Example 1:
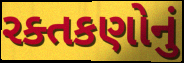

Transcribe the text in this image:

રક્તકણોનું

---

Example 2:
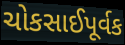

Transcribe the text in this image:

ચોકસાઈપૂર્વક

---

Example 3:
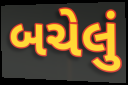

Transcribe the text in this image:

બચેલું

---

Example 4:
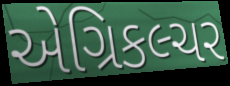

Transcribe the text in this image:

એગ્રિકલ્ચર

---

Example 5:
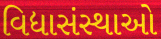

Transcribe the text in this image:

વિદ્યાસંસ્થાઓ